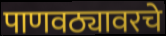
पाणवठ्यावरचे